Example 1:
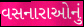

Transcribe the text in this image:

વસનારાઓનું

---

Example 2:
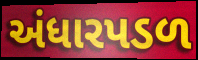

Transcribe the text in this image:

અંધારપડળ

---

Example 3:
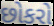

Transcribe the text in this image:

છોકરો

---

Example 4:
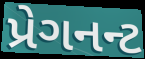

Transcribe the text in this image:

પ્રેગનન્ટ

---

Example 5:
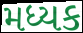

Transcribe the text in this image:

મધ્યક